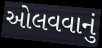
ઓલવવાનું